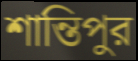
শান্তিপুর